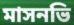
মাসনভি